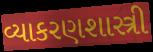
વ્યાકરણશાસ્ત્રી